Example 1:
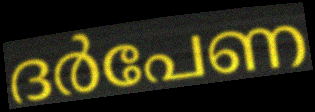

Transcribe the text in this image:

ദർപേണ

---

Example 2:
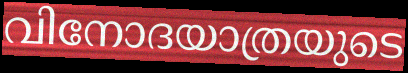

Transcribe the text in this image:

വിനോദയാത്രയുടെ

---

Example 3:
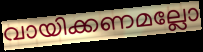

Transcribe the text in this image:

വായിക്കണമല്ലോ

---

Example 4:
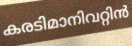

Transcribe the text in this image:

കരടിമാനിവറ്റിൻ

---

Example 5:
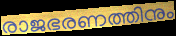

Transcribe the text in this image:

രാജഭരണത്തിനും